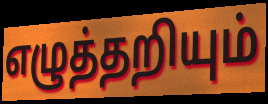
எழுத்தறியும்